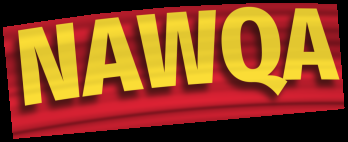
NAWQA